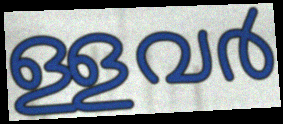
ള്ളവർ